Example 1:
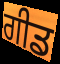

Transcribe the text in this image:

ਗੀਡ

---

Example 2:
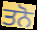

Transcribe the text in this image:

ਤਨੋ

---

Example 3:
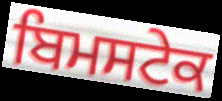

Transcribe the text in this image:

ਬਿਮਸਟੇਕ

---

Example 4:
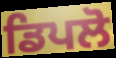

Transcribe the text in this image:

ਡਿਪਲੋ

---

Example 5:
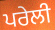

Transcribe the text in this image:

ਪਰੇਲੀ